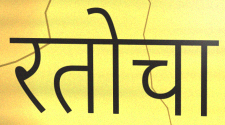
रतोचा